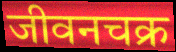
जीवनचक्र